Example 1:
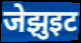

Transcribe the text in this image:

जेझुइट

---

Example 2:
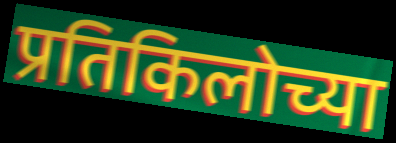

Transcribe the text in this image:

प्रतिकिलोच्या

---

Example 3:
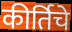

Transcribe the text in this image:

कीर्तिचे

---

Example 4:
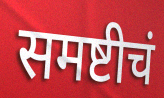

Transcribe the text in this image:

समष्टीचं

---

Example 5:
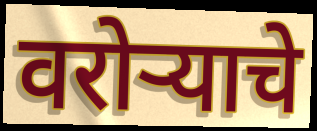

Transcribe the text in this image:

वरोऱ्याचे